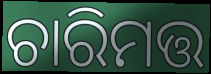
ଚାରିମତ୍ତ